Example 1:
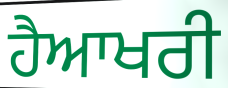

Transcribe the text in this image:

ਹੈਆਖਰੀ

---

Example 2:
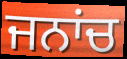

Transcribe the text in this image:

ਜਨਾਂਚ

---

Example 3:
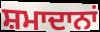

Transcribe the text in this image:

ਸ਼ਮਾਦਾਨਾਂ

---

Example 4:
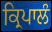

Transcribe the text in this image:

ਕ੍ਰਿਪਾਲੰ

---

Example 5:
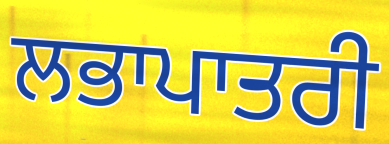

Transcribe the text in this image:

ਲਭਾਪਾਤਰੀ